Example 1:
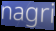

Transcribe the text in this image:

nagri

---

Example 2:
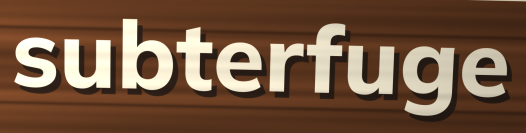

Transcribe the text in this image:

subterfuge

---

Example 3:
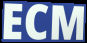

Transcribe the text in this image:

ECM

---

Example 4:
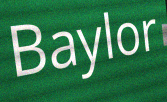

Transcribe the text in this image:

Baylor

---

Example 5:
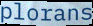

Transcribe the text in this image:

plorans